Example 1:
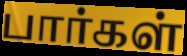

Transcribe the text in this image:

பார்கள்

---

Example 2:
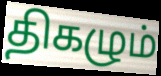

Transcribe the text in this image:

திகழும்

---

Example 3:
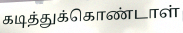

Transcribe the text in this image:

கடித்துக்கொண்டாள்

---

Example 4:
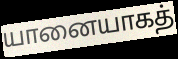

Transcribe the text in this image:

யானையாகத்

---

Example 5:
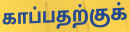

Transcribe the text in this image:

காப்பதற்குக்